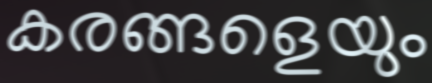
കരങ്ങളെയും